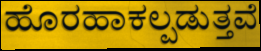
ಹೊರಹಾಕಲ್ಪಡುತ್ತವೆ